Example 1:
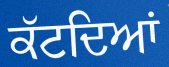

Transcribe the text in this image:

ਕੱਟਦਿਆਂ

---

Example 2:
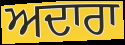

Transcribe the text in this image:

ਅਦਾਰਾ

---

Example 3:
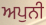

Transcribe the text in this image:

ਅਪੁਨੀ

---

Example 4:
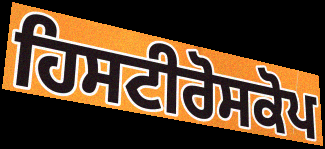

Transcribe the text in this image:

ਹਿਸਟੀਰੋਸਕੋਪ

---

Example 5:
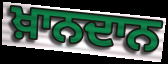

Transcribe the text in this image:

ਖ਼ਾਨਦਾਨ